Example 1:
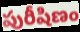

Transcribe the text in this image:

పురీషిణం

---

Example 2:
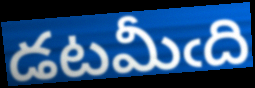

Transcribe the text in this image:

డటమీఁది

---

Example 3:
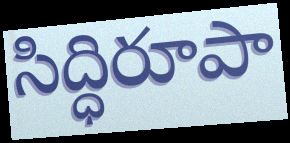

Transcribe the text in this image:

సిద్ధిరూపా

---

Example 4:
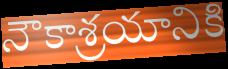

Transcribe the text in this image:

నౌకాశ్రయానికి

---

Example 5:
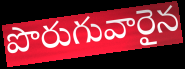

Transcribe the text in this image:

పొరుగువారైన